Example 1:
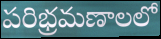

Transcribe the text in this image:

పరిభ్రమణాలలో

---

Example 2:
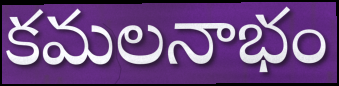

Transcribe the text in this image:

కమలనాభం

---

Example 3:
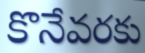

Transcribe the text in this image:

కొనేవరకు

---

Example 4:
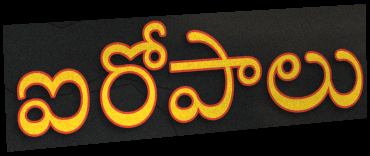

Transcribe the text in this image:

ఐరోపాలు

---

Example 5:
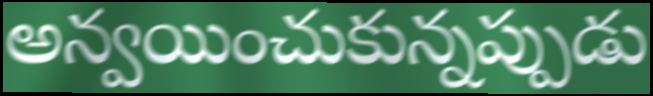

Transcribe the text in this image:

అన్వయించుకున్నప్పుడు